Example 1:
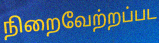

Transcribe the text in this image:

நிறைவேற்றப்பட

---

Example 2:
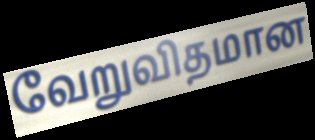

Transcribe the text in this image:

வேறுவிதமான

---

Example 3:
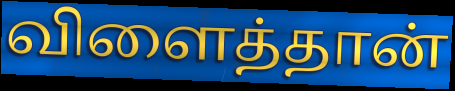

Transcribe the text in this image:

விளைத்தான்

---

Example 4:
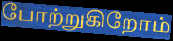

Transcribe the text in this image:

போற்றுகிறோம்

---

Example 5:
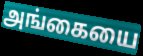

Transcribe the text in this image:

அங்கையை